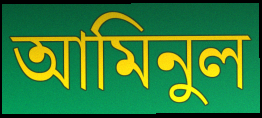
আমিনুল